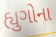
હ્યુગોના